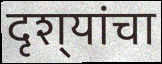
दृश्यांचा